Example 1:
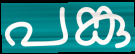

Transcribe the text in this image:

പങ്കു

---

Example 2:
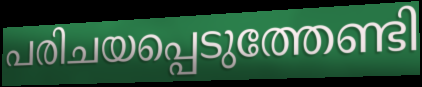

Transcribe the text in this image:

പരിചയപ്പെടുത്തേണ്ടി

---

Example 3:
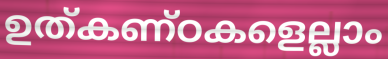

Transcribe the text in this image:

ഉത്കണ്ഠകളെല്ലാം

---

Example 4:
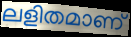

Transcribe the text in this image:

ലളിതമാണ്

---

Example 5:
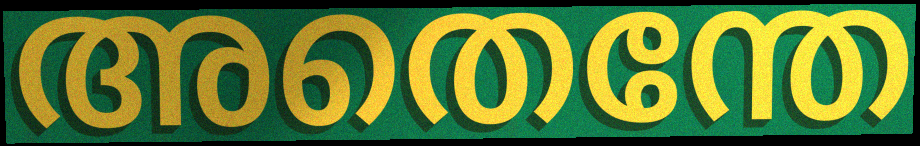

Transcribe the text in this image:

അതെന്തേ